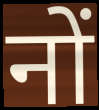
नों